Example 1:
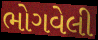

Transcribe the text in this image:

ભોગવેલી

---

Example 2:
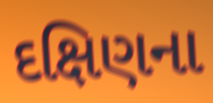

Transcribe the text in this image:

દક્ષિણના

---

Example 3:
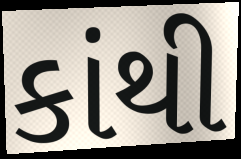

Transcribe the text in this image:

કાંથી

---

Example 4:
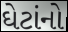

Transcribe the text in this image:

ઘેટાંનો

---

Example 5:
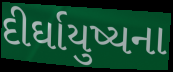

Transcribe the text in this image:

દીર્ઘાયુષ્યના